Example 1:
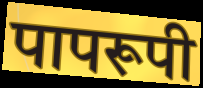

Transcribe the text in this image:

पापरूपी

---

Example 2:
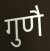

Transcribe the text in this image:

गुणै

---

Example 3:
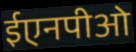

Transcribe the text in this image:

ईएनपीओ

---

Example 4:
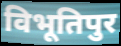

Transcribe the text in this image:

विभूतिपुर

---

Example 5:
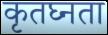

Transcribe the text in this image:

कृतघ्नता